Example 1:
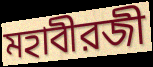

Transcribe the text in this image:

মহাবীরজী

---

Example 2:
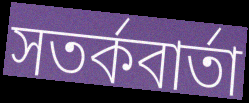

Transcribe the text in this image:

সতর্কবার্তা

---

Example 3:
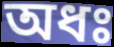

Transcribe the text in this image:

অধঃ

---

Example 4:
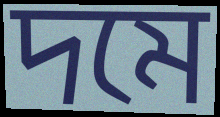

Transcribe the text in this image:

দমে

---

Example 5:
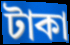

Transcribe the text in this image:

টাকা